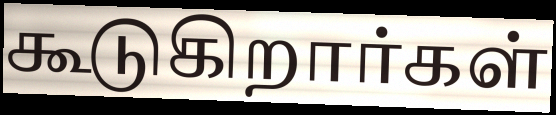
கூடுகிறார்கள்